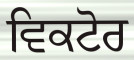
ਵਿਕਟੋਰ